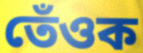
তেঁওক